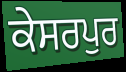
ਕੇਸਰਪੁਰ